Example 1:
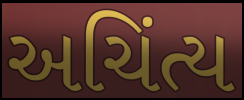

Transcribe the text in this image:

અચિંત્ય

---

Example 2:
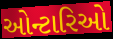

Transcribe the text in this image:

ઓન્ટારિઓ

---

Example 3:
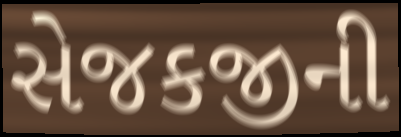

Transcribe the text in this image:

સેજકજીની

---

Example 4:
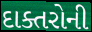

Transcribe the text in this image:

દાક્તરોની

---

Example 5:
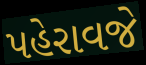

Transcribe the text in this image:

પહેરાવજે